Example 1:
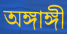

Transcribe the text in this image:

অঙ্গাঙ্গী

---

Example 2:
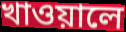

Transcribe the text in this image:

খাওয়ালে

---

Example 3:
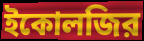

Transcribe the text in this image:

ইকোলজির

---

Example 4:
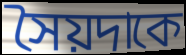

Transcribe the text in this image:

সৈয়দাকে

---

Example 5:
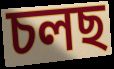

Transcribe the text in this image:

চলছ